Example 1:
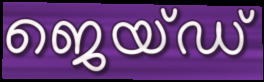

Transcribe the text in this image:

ജെയ്ഡ്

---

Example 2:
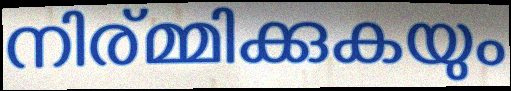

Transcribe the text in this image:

നിര്മ്മിക്കുകയും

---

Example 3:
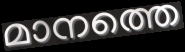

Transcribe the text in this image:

മാനത്തെ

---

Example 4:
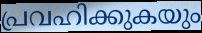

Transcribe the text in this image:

പ്രവഹിക്കുകയും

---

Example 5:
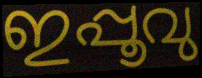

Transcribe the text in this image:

ഇപ്പൂവു